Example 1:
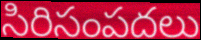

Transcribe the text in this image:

సిరిసంపదలు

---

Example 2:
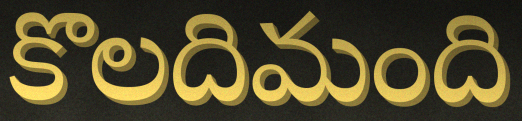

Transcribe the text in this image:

కొలదిమంది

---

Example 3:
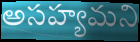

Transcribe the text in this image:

అసహ్యమని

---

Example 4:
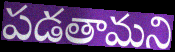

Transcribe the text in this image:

పడతామని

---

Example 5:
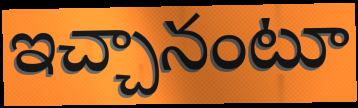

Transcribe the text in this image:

ఇచ్చానంటూ